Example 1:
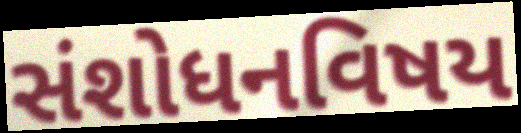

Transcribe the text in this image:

સંશોધનવિષય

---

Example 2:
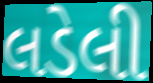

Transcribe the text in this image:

લડેલી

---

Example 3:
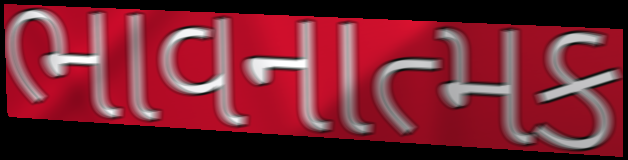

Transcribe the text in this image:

ભાવનાત્મક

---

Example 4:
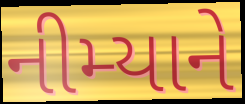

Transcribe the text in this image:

નીમ્યાને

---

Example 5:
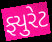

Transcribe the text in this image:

ફ્યુરેટ